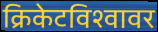
क्रिकेटविश्वावर